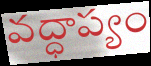
వద్ధాప్యం